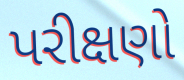
પરીક્ષણો